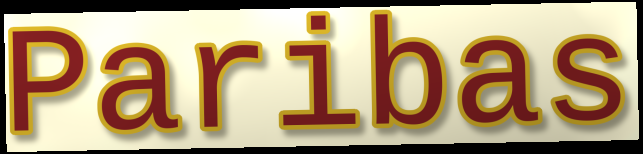
Paribas